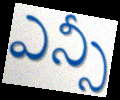
ఎన్సీ